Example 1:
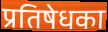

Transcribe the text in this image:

प्रतिषेधका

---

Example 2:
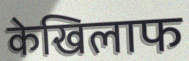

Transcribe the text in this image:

केखिलाफ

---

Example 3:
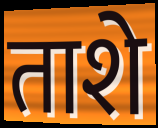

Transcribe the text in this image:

ताशे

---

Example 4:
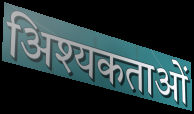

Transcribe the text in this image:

अिश्यकताओं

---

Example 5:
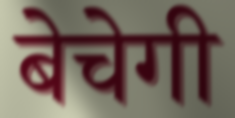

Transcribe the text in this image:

बेचेगी